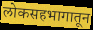
लोकसहभागातून